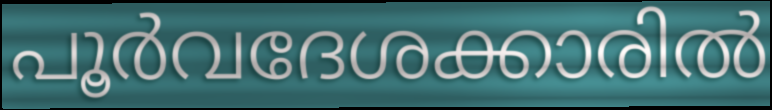
പൂർവദേശക്കാരിൽ